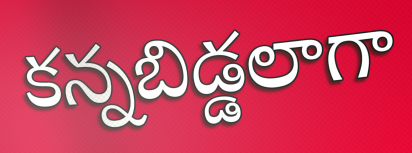
కన్నబిడ్డలాగా